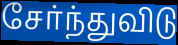
சேர்ந்துவிடு